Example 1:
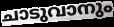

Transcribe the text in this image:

ചാടുവാനും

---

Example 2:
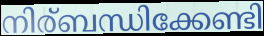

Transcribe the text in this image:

നിര്ബന്ധിക്കേണ്ടി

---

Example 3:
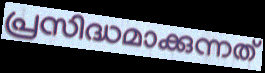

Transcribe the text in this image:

പ്രസിദ്ധമാക്കുന്നത്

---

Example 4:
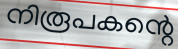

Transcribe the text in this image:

നിരൂപകന്റെ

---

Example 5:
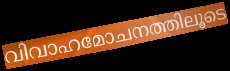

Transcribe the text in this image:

വിവാഹമോചനത്തിലൂടെ